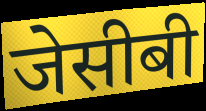
जेसीबी